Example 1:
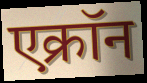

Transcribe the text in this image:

एक्रॉन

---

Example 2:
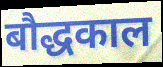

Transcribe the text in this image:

बौद्धकाल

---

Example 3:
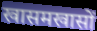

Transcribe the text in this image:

खासमखासों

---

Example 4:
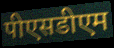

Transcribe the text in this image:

पीएसडीएम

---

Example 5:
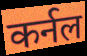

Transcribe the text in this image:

कर्नल